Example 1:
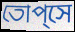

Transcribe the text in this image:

তোপ্‌সে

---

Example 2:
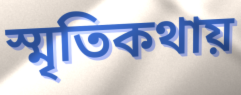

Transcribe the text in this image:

স্মৃতিকথায়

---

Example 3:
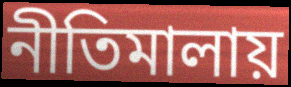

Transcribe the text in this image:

নীতিমালায়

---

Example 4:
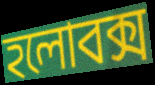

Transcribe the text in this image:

হলোবক্স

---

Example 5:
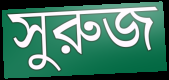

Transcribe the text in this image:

সুরুজ